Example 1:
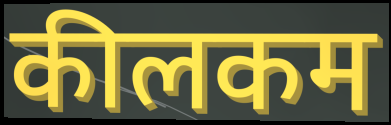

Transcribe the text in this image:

कीलकम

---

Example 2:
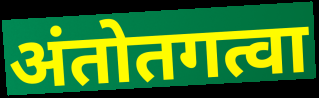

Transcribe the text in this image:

अंतोतगत्वा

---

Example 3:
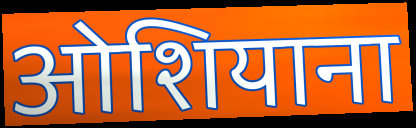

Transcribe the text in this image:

ओशियाना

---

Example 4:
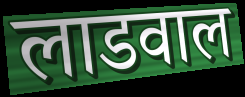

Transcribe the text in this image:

लाडवाल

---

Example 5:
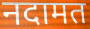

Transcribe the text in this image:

नदामत